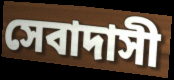
সেবাদাসী